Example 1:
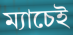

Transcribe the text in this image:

ম্যাচেই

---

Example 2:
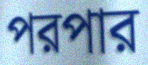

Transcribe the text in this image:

পরপার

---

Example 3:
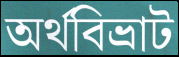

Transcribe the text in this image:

অর্থবিভ্রাট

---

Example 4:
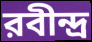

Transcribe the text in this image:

রবীন্দ্র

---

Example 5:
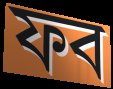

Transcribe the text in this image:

ফব